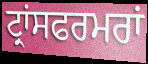
ਟ੍ਰਾਂਸਫਰਮਰਾਂ